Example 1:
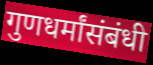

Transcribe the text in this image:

गुणधर्मांसंबंधी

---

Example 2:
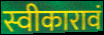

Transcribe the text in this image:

स्वीकारावं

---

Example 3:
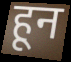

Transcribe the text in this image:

हून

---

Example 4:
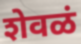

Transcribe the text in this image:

शेवळं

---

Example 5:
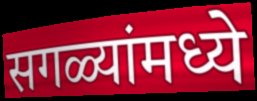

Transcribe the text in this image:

सगळ्यांमध्ये